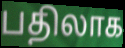
பதிலாக